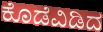
ಕೊಡೆವಿಡಿದ